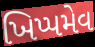
ખિપ્પમેવ